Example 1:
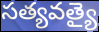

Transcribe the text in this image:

సత్యవత్యై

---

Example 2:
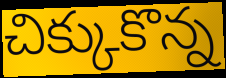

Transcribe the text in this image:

చిక్కుకొన్న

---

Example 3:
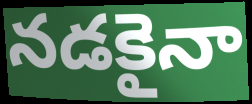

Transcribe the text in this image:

నడకైనా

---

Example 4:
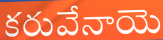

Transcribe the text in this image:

కరువేనాయె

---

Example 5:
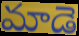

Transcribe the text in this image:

మాడె